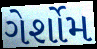
ગેર્શોમ